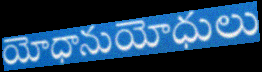
యోధానుయోధులు